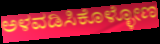
ಅಳವಡಿಸಿಕೊಳ್ಳೋಣ